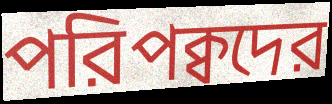
পরিপক্বদের